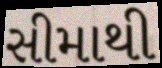
સીમાથી